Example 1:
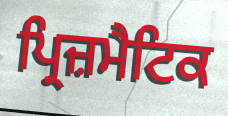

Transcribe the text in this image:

ਪ੍ਰਿਜ਼ਮੈਟਿਕ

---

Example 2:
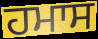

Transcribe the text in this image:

ਹਮਾਸ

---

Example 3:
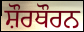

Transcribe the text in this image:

ਸ਼ੌਰਥੌਰਨ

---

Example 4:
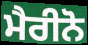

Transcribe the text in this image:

ਮੈਰੀਨੋ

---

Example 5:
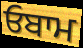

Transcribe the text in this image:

ਓਬਾਮ